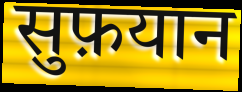
सुफ़यान